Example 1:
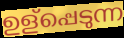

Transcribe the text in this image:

ഉള്പ്പെടുന്ന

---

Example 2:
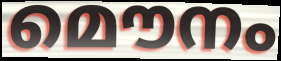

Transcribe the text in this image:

മൌനം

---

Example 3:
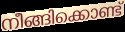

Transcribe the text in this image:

നീങ്ങിക്കൊണ്ട്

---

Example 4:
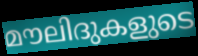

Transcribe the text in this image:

മൗലിദുകളുടെ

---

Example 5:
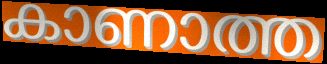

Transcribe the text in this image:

കാണാത്ത